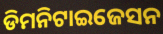
ଡିମନିଟାଇଜେସନ